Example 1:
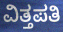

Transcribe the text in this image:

ವಿತ್ತಪತಿ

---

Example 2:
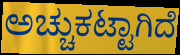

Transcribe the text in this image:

ಅಚ್ಚುಕಟ್ಟಾಗಿದೆ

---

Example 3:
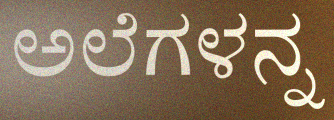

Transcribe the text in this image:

ಅಲೆಗಳನ್ನ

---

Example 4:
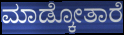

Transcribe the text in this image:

ಮಾಡ್ಕೋತಾರೆ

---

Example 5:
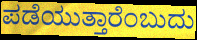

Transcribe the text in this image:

ಪಡೆಯುತ್ತಾರೆಂಬುದು